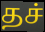
தச்